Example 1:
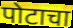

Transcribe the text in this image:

पोटाचा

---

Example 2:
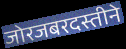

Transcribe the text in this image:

जोरजबरदस्तीने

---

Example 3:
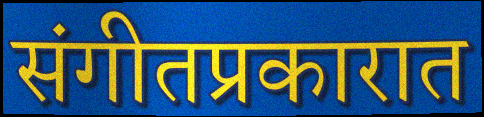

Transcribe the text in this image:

संगीतप्रकारात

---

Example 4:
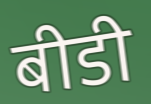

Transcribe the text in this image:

बीडी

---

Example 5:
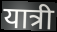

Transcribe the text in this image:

यात्री